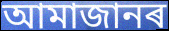
আমাজানৰ